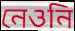
নেওনি